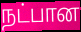
நட்பான